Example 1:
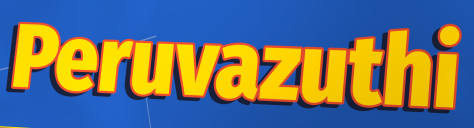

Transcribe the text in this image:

Peruvazuthi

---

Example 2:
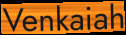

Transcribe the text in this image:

Venkaiah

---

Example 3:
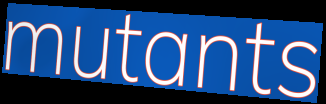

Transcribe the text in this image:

mutants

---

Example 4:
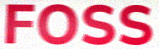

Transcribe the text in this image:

FOSS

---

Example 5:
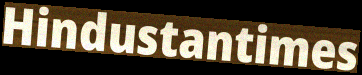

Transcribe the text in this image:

Hindustantimes